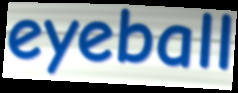
eyeball